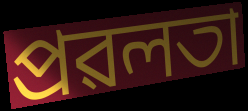
প্ৰৱলতা